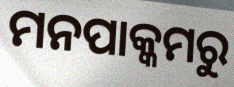
ମନପାକ୍କମରୁ